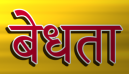
बेधता